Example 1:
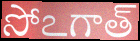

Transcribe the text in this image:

సోఽగాత్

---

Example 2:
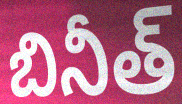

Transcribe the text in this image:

బినీత్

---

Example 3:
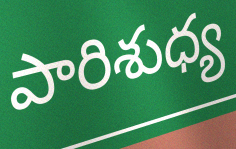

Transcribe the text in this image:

పారిశుధ్య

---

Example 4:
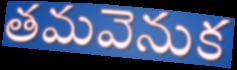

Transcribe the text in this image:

తమవెనుక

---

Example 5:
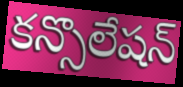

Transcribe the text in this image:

కన్సొలేషన్